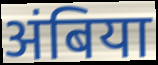
अंबिया